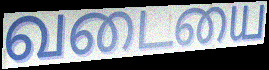
வடையை